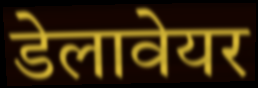
डेलावेयर